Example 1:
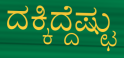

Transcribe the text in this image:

ದಕ್ಕಿದ್ದೆಷ್ಟು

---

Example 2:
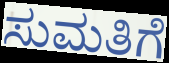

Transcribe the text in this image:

ಸುಮತಿಗೆ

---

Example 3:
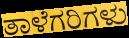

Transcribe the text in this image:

ತಾಳೆಗರಿಗಳು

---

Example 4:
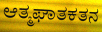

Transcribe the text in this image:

ಆತ್ಮಘಾತಕತನ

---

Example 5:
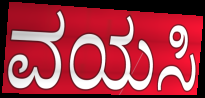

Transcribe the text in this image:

ವಯಸಿ